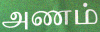
அணம்